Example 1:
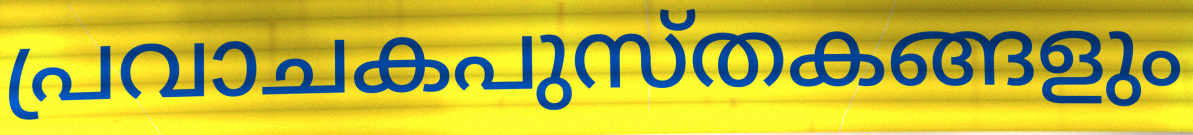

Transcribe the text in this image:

പ്രവാചകപുസ്തകങ്ങളും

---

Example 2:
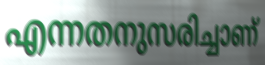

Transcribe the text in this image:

എന്നതനുസരിച്ചാണ്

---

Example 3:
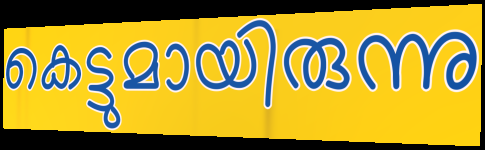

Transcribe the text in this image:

കെട്ടുമായിരുന്നു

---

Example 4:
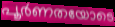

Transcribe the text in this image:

പൂർണതയോടെ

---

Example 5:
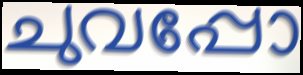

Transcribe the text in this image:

ചുവപ്പോ